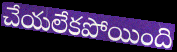
చేయలేకపోయింది